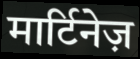
मार्टिनेज़